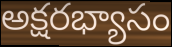
అక్షరభ్యాసం